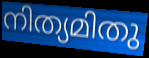
നിത്യമിതു